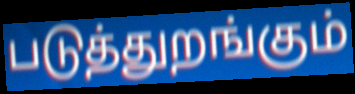
படுத்துறங்கும்